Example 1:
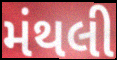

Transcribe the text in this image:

મંથલી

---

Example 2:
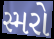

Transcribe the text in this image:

સ્મરો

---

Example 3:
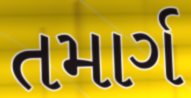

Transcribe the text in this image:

તમાર્ગ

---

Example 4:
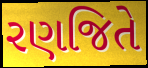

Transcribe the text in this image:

રણજિતે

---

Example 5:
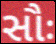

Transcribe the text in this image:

સૌઃ